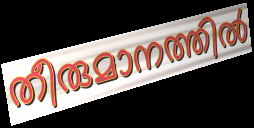
തീരുമാനത്തിൽ